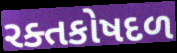
રક્તકોષદળ